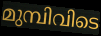
മുമ്പിവിടെ